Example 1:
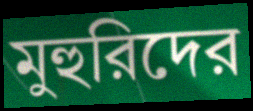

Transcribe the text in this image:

মুহুরিদের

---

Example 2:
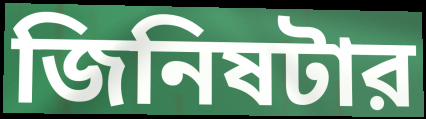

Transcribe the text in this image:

জিনিষটার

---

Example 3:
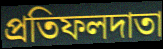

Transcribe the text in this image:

প্রতিফলদাতা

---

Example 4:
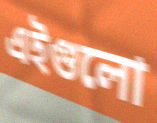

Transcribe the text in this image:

এইগুলো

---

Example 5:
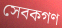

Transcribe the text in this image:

সেবকগণ